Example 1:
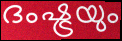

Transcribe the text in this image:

ദംഷ്ട്രയും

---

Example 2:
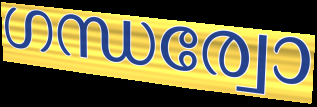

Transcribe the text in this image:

ഗന്ധര്വോ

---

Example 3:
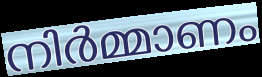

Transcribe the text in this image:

നിർമ്മാണം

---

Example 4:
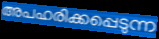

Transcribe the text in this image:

അപഹരിക്കപ്പെടുന്ന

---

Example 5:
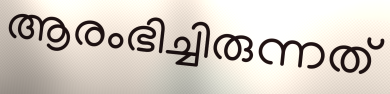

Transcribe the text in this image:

ആരംഭിച്ചിരുന്നത്